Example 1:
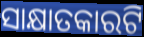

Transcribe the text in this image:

ସାକ୍ଷାତକାରଟି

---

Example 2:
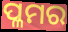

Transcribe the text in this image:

ପ୍ଳମର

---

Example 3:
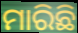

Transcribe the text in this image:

ମାରିଛି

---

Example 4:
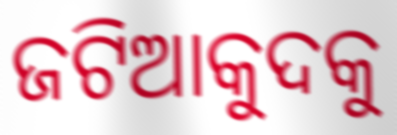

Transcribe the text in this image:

ଜଟିଆକୁଦକୁ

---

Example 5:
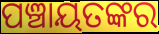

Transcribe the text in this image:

ପଞ୍ଚାୟତଙ୍କର